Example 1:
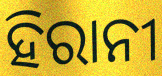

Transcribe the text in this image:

ହିରାନୀ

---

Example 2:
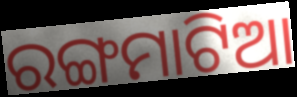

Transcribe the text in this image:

ରଙ୍ଗମାଟିଆ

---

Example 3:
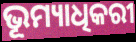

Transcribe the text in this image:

ଭୂମ୍ୟାଧିକରୀ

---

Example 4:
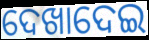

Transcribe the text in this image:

ଦେଖାଦେଇ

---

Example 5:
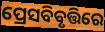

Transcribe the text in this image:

ପ୍ରେସବିବୃତ୍ତିରେ